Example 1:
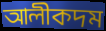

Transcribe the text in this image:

আলীকদম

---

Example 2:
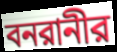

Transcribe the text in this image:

বনরানীর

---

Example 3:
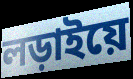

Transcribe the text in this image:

লড়াইয়ে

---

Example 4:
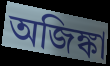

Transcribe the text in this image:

অজিঙ্কা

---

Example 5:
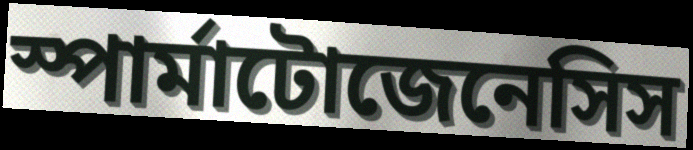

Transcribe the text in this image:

স্পার্মাটোজেনেসিস